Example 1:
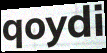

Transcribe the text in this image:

qoydi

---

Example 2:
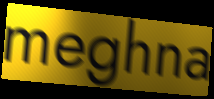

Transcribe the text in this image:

meghna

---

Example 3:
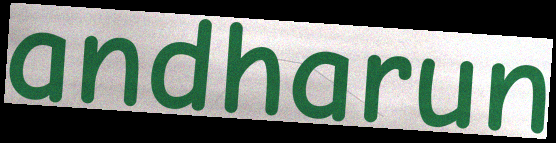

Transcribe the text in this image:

andharun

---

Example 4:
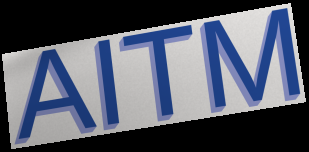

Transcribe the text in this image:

AITM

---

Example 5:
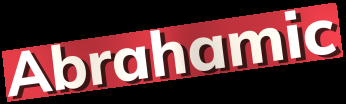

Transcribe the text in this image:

Abrahamic